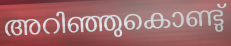
അറിഞ്ഞുകൊണ്ടു്